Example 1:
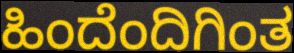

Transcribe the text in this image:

ಹಿಂದೆಂದಿಗಿಂತ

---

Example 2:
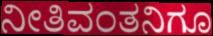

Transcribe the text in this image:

ನೀತಿವಂತನಿಗೂ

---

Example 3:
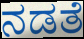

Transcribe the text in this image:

ನಡತೆ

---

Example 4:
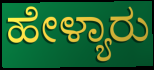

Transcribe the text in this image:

ಹೇಳ್ಯಾರು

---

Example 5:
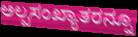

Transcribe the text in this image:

ಅಲ್ಪಸಂಖ್ಯಾತರನ್ನೂ